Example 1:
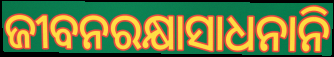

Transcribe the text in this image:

ଜୀବନରକ୍ଷାସାଧନାନି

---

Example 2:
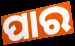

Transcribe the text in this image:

ପାର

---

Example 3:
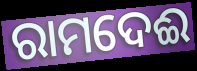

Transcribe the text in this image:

ରାମଦେଈ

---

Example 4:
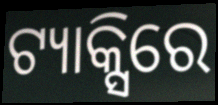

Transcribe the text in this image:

ଟ୍ୟାକ୍ସିରେ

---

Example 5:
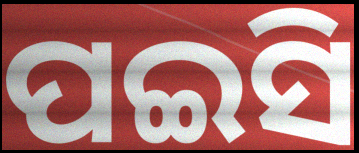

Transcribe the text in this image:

ପଇସି